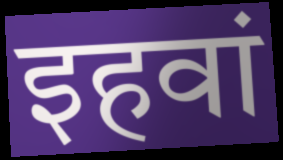
इहवां